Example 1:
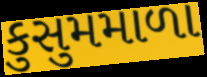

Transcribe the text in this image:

કુસુમમાળા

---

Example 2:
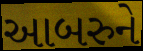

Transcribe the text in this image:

આબરુને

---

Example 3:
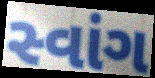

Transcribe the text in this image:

સ્વાંગ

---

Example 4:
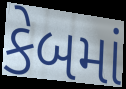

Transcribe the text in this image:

કેબમાં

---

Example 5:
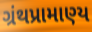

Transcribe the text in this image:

ગ્રંથપ્રામાણ્ય